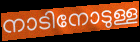
നാടിനോടുള്ള